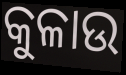
କୁଳାଉ